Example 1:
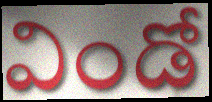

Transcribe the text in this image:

విండో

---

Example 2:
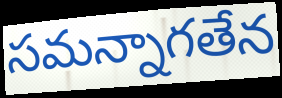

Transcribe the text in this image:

సమన్నాగతేన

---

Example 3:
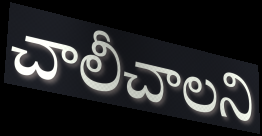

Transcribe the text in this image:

చాలీచాలని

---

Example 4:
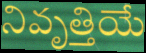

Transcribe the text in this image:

నివృత్తియే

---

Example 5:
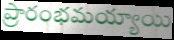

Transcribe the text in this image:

ప్రారంభమయ్యాయి